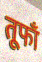
तूफाँ